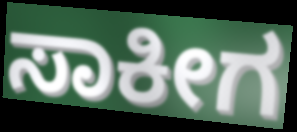
ಸಾಕೀಗ